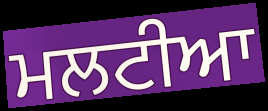
ਮਲਟੀਆ